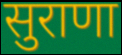
सुराणा